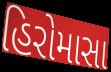
હિરોમાસા